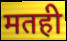
मतही